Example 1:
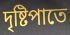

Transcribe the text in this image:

দৃষ্টিপাতে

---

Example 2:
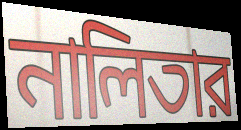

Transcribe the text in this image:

নালিতার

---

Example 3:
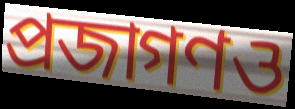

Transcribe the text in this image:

প্রজাগণও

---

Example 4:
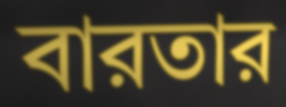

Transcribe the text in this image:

বারতার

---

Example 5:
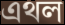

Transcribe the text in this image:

এথল